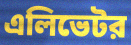
এলিভেটর